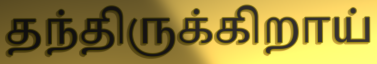
தந்திருக்கிறாய்